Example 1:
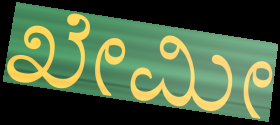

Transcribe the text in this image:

ಖೇಮೀ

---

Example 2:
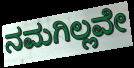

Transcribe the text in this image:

ನಮಗಿಲ್ಲವೇ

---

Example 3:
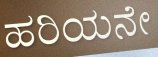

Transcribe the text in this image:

ಹರಿಯನೇ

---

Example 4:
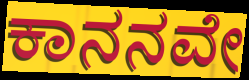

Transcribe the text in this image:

ಕಾನನವೇ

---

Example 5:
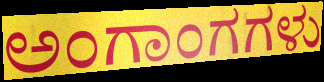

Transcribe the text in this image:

ಅಂಗಾಂಗಗಳು